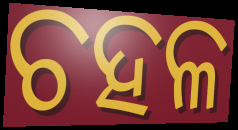
ଚହଳ